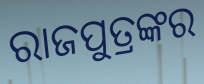
ରାଜପୁତ୍ରଙ୍କର